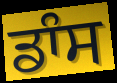
ਡਾੰਸ